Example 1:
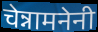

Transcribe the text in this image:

चेन्नामनेनी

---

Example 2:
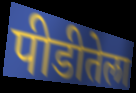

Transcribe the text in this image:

पीडीतेला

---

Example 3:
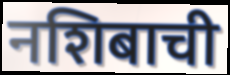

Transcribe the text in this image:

नशिबाची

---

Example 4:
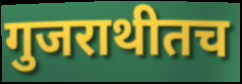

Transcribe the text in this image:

गुजराथीतच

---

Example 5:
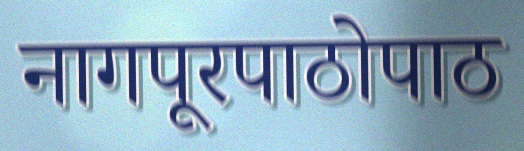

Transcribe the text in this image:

नागपूरपाठोपाठ